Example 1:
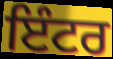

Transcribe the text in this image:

ਇੰਟਰ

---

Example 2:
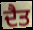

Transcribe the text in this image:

ਦੈਤ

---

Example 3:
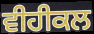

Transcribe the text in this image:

ਵੀਹੀਕਲ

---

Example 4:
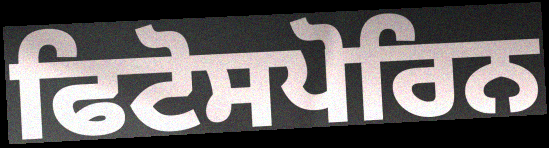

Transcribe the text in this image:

ਫਿਟੋਸਪੋਰਿਨ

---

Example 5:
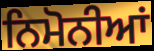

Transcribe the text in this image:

ਨਿਮੋਨੀਆਂ